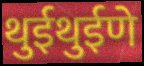
थुईथुईणे